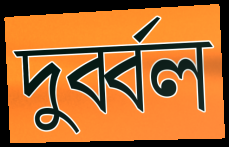
দুর্ব্বল